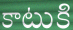
కాటుకి